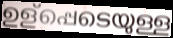
ഉള്പ്പെടെയുള്ള